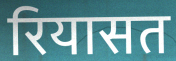
रियासत